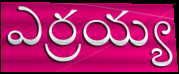
ఎర్రయ్య